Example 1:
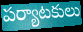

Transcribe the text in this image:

పర్యాటకులు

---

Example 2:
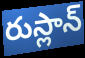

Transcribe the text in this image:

రుస్లాన్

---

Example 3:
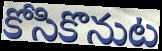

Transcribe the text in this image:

కోసికొనుట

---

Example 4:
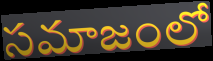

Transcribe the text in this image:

సమాజంలో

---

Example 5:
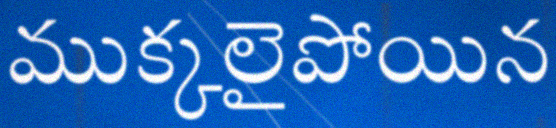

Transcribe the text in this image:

ముక్కలైపోయిన